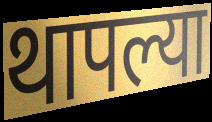
थापल्या